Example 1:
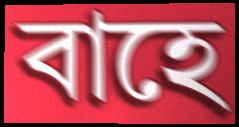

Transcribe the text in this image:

বাহে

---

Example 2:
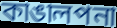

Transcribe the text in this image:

কাঙালপনা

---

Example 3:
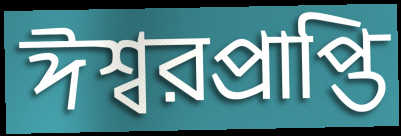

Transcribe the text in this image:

ঈশ্বরপ্রাপ্তি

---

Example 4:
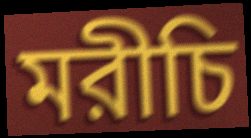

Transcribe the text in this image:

মরীচি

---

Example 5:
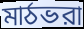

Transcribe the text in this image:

মাঠভরা